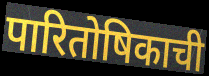
पारितोषिकाची